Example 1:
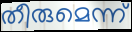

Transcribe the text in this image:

തീരുമെന്ന്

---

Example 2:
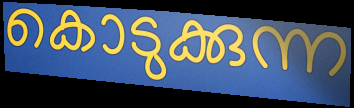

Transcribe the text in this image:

കൊടുക്കുന്ന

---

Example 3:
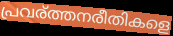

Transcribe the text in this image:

പ്രവര്ത്തനരീതികളെ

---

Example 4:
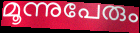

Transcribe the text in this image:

മൂന്നുപേരും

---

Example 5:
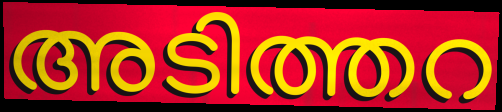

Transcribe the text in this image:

അടിത്തറ